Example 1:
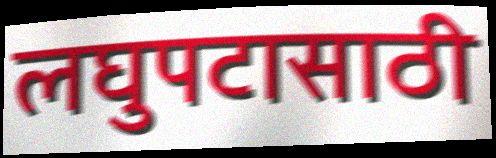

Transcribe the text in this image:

लघुपटासाठी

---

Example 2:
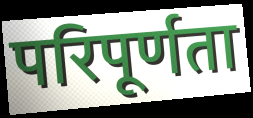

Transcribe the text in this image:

परिपूर्णता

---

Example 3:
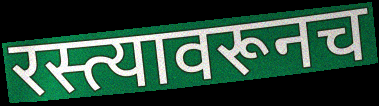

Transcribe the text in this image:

रस्त्यावरूनच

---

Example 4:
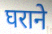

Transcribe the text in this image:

घराने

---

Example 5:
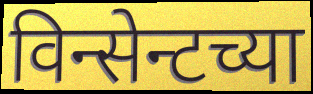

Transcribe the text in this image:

विन्सेन्टच्या